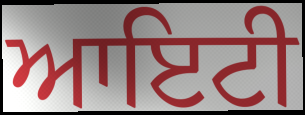
ਆਇਟੀ